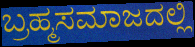
ಬ್ರಹ್ಮಸಮಾಜದಲ್ಲಿ